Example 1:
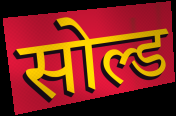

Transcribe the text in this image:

सोल्ड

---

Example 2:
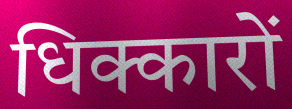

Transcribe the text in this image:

धिक्कारों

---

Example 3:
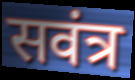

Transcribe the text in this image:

सवंत्र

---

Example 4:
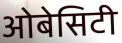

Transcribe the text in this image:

ओबेसिटी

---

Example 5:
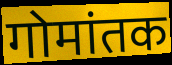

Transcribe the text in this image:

गोमांतक